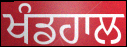
ਖੰਡਹਾਲ